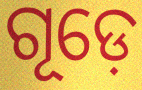
ଗୂଡ଼େ